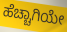
ಹೆಚ್ಚಾಗಿಯೇ